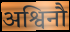
अश्विनौ